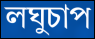
লঘুচাপ